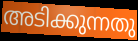
അടിക്കുന്നതു